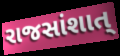
રાજસાંશાત્